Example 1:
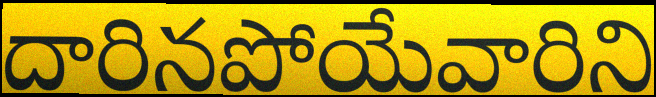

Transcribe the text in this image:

దారినపోయేవారిని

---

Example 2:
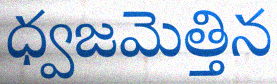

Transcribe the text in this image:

ధ్వజమెత్తిన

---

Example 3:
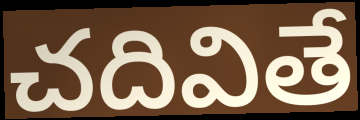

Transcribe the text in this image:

చదివితే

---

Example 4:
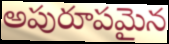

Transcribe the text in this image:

అపురూపమైన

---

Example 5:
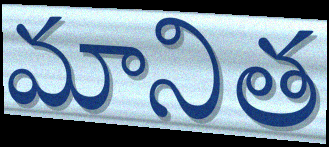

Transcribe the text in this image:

మానిత